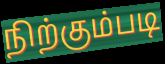
நிற்கும்படி